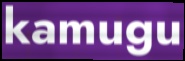
kamugu